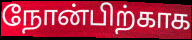
நோன்பிற்காக